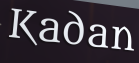
Kadan